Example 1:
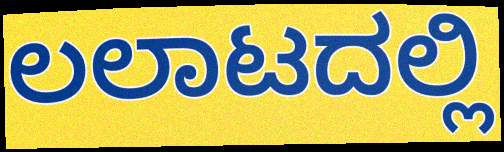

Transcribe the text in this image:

ಲಲಾಟದಲ್ಲಿ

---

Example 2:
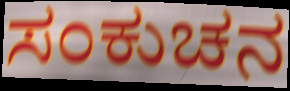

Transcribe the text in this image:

ಸಂಕುಚನ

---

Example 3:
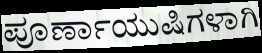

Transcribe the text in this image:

ಪೂರ್ಣಾಯುಷಿಗಳಾಗಿ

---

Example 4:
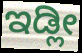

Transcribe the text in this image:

ಇಡ್ಲೀ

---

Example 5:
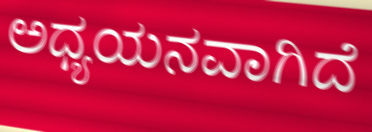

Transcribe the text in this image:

ಅಧ್ಯಯನವಾಗಿದೆ